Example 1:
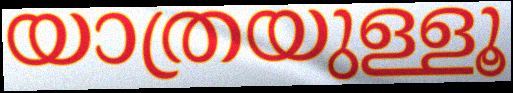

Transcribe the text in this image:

യാത്രയുള്ളൂ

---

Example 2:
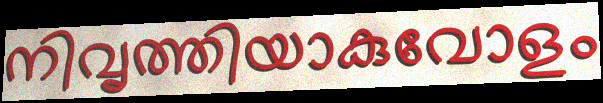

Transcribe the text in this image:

നിവൃത്തിയാകുവോളം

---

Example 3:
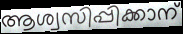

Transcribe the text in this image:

ആശ്വസിപ്പിക്കാന്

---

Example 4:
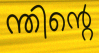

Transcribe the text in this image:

ന്തിന്റെ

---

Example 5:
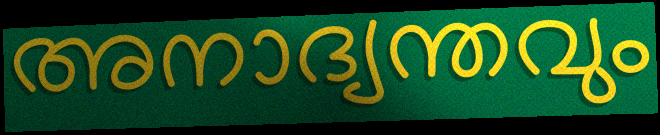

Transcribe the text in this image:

അനാദ്യന്തവും